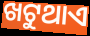
ଖଟୁଥାଏ